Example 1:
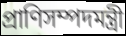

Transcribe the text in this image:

প্রাণিসম্পদমন্ত্রী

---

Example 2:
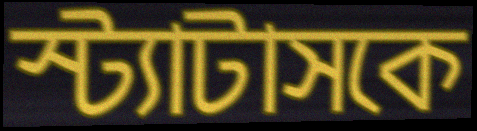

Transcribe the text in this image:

স্ট্যাটাসকে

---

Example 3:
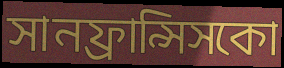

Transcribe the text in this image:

সানফ্রান্সিসকো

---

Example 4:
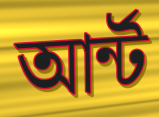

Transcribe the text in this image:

আর্ন্ট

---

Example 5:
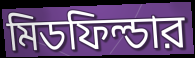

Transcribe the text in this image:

মিডফিল্ডার